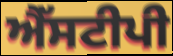
ਐੱਸਟੀਪੀ